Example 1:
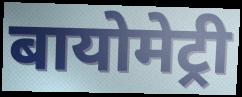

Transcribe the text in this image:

बायोमेट्री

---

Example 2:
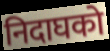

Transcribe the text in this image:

निदाघको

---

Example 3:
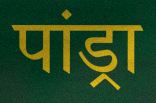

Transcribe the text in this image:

पांड्रा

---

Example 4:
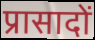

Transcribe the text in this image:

प्रासादों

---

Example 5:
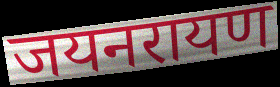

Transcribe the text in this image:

जयनरायण